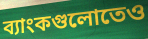
ব্যাংকগুলোতেও